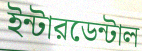
ইন্টারডেন্টাল